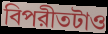
বিপরীতটাও